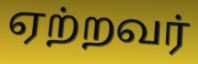
ஏற்றவர்